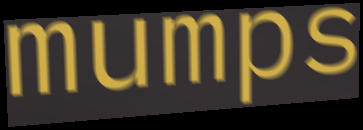
mumps